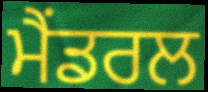
ਮੈਂਡਰਲ